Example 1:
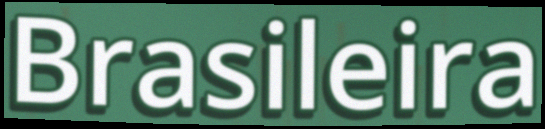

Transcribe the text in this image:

Brasileira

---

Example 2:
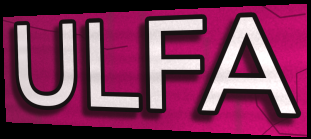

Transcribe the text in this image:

ULFA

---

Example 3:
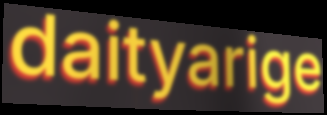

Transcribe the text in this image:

daityarige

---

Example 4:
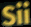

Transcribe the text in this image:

Sii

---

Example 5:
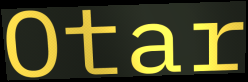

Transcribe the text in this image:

Otar